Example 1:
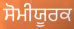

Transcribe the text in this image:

ਸੋਮੀਯੂਰਕ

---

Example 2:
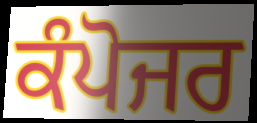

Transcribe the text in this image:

ਕੰਪੋਜਰ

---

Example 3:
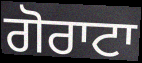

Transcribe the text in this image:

ਗੋਰਾਟਾ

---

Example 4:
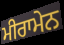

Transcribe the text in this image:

ਮੀਰਾਮੇਨ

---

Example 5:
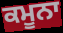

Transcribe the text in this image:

ਕਮੂਨਾ